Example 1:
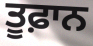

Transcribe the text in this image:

ਤੂਫ਼ਾਨ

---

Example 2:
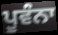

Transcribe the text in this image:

ਪੂਵੰਨਾ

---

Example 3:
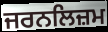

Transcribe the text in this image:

ਜਰਨਲਿਜ਼ਮ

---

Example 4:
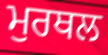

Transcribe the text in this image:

ਮੁਰਥਲ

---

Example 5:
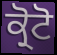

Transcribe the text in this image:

ਕ੍ਰੋਟੋ